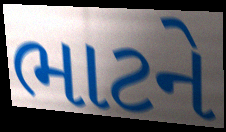
ભાટને